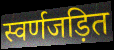
स्वर्णजड़ित